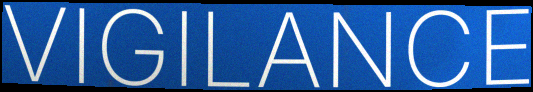
VIGILANCE